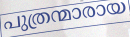
പുത്രന്മാരായ